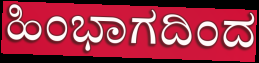
ಹಿಂಭಾಗದಿಂದ